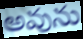
అవును